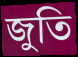
জুতি